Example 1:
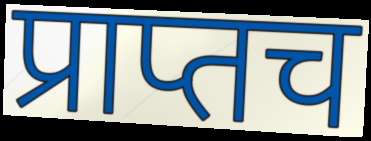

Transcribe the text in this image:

प्राप्तच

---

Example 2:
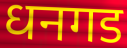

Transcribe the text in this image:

धनगड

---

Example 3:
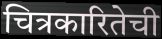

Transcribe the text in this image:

चित्रकारितेची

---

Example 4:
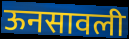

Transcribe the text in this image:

ऊनसावली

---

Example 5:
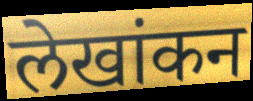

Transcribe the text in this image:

लेखांकन